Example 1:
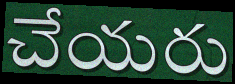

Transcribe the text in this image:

చేయరు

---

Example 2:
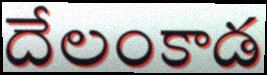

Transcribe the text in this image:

దేలంకాడ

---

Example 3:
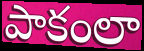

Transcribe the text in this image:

పాకంలా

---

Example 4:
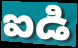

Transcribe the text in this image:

ఐడి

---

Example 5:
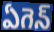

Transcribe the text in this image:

ఏగెన్